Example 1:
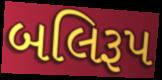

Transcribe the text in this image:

બલિરૂપ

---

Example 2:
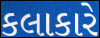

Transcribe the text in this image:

કલાકારે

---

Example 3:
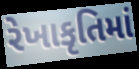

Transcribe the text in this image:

રેખાકૃતિમાં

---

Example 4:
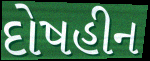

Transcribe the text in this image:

દોષહીન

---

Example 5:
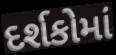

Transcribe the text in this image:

દર્શકોમાં